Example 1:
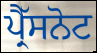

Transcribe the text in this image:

ਪ੍ਰੈੱਸਨੋਟ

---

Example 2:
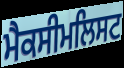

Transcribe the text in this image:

ਮੈਕਸੀਮਲਿਸਟ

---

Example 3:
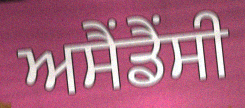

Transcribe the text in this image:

ਅਸੈਂਡੈਂਸੀ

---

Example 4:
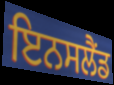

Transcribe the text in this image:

ਇਨਸਲੈਂਡ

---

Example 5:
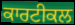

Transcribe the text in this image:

ਕਾਰਟੀਕਲ